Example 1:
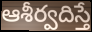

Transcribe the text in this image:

ఆశీర్వదిస్తే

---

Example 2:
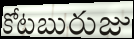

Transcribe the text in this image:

కోటబురుజు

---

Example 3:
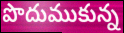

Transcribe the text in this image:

పొదుముకున్న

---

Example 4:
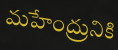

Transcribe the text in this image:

మహేంద్రునికి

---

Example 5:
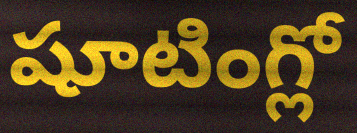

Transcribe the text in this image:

షూటింగ్లో